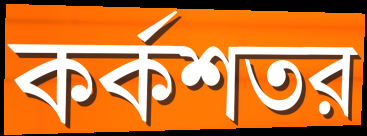
কর্কশতর